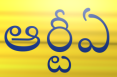
ఆర్టీఏ